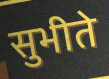
सुभीते